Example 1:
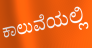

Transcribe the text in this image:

ಕಾಲುವೆಯಲ್ಲಿ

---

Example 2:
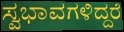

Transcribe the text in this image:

ಸ್ವಭಾವಗಳಿದ್ದರೆ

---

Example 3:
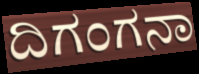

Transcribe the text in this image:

ದಿಗಂಗನಾ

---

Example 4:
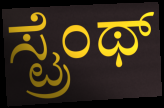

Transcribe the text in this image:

ಸ್ಟ್ರೆಂಥ್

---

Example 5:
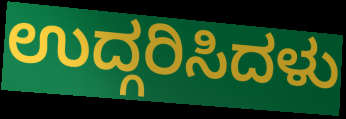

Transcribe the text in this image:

ಉದ್ಗರಿಸಿದಳು